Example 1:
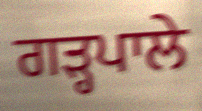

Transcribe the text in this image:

ਗੜ੍ਹਪਾਲੇ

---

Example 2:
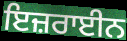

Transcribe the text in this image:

ਇਜ਼ਰਾਈਨ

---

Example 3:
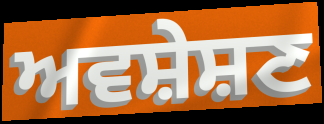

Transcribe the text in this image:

ਅਵਸ਼ੇਸ਼ਣ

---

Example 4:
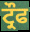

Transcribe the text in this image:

ਟ੍ਰੌਫ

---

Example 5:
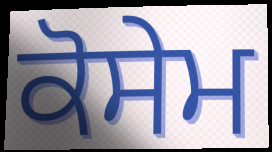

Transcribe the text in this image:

ਕੋਸੇਮ